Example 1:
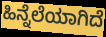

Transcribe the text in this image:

ಹಿನ್ನೆಲೆಯಾಗಿದೆ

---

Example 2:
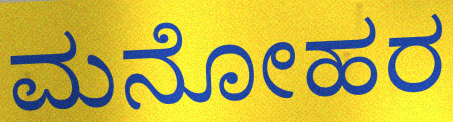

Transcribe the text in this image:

ಮನೋಹರ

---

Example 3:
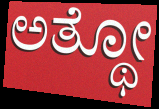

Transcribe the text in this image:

ಅತ್ಥೋ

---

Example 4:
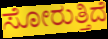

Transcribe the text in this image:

ಸೋರುತ್ತಿದೆ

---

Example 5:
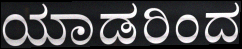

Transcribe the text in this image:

ಯಾಡರಿಂದ